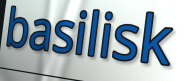
basilisk